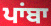
ਪਾਂਬਾ